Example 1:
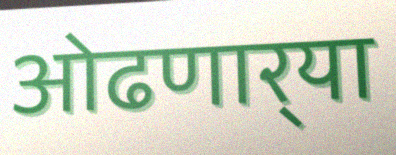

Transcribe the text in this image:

ओढणार्‍या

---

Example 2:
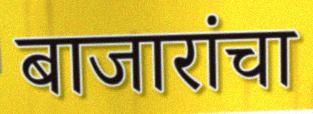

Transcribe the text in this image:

बाजारांचा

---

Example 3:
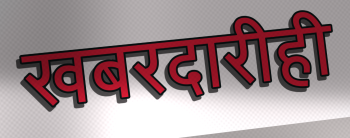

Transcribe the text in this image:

खबरदारीही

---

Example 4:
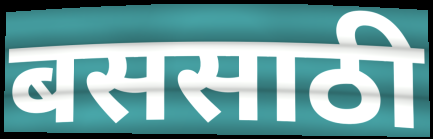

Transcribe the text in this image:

बससाठी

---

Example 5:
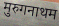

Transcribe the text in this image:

मुरुगनाथम